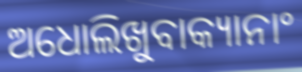
ଅଧୋଲିଖୁବାକ୍ୟାନାଂ